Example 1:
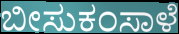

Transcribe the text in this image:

ಬೀಸುಕಂಸಾಳೆ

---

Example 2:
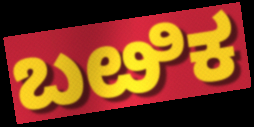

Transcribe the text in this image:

ಬೞಿಕ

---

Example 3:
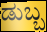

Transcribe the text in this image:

ಡುಬ್ಬ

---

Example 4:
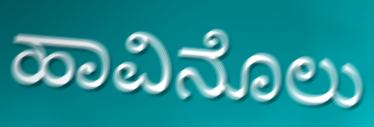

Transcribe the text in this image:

ಹಾವಿನೊಲು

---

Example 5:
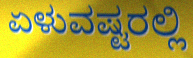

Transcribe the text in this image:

ಏಳುವಷ್ಟರಲ್ಲಿ